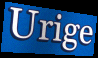
Urige